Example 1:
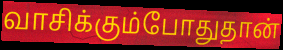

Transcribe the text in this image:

வாசிக்கும்போதுதான்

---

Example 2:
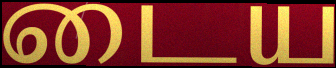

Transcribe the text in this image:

டைய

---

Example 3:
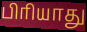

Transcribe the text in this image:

பிரியாது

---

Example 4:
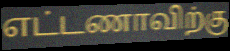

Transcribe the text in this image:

எட்டணாவிற்கு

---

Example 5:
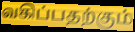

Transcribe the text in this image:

வகிப்பதற்கும்